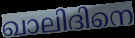
ഖാലിദിനെ